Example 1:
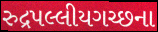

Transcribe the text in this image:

રુદ્રપલ્લીયગચ્છના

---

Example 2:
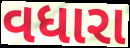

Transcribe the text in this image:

વધારા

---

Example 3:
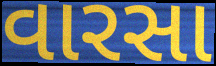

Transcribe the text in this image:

વારસા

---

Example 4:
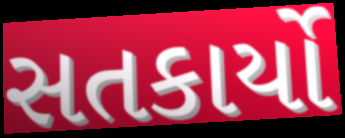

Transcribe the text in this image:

સતકાર્યો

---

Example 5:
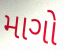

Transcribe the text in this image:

માગો